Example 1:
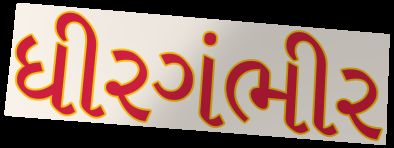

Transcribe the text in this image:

ધીરગંભીર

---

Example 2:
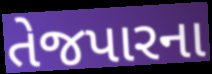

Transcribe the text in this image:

તેજપારના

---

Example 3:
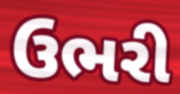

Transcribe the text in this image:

ઉભરી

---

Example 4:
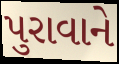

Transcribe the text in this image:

પુરાવાને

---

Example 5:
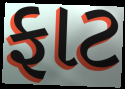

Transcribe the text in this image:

ફાટ